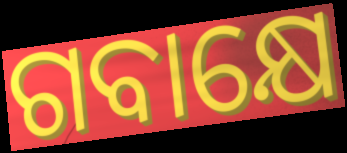
ଗବାକ୍ଷେ